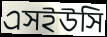
এসইউসি